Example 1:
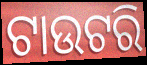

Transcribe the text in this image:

ଟାଉଟରି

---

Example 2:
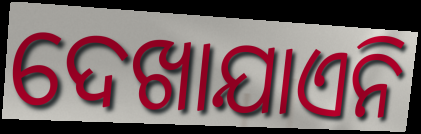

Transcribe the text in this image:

ଦେଖାଯାଏନି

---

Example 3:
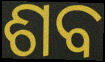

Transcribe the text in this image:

ଶବ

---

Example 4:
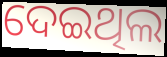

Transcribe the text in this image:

ଦେଇଥିଲ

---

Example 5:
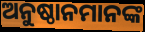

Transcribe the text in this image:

ଅନୁଷ୍ଠାନମାନଙ୍କ